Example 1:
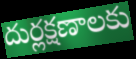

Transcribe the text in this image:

దుర్లక్షణాలకు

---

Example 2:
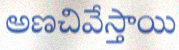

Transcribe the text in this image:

అణచివేస్తాయి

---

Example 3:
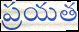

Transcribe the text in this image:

ప్రయత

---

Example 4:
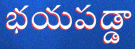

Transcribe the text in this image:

భయపడ్డా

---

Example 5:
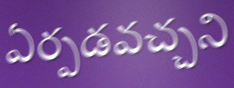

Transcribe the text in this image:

ఏర్పడవచ్చని